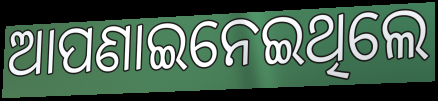
ଆପଣାଇନେଇଥିଲେ